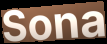
Sona